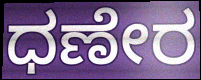
ಧಣೇರ